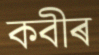
কবীৰ